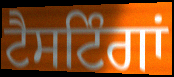
ਟੈਸਟਿੰਗਾਂ